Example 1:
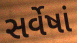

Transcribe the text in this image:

સર્વેષાં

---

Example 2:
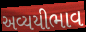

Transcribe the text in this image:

અવ્યયીભાવ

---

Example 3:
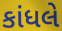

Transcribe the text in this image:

કાંધલે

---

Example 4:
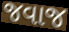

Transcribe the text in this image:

જવાજ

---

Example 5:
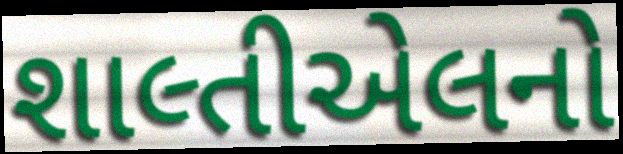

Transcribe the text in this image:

શાલ્તીએલનો